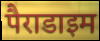
पैराडाइम